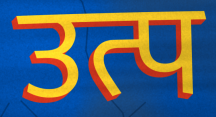
उत्प